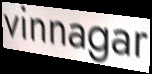
vinnagar